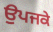
ਉਪਜਕੇ